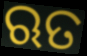
ଋତ